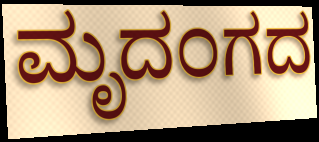
ಮೃದಂಗದ